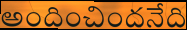
అందించిందనేది